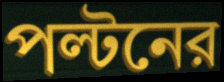
পল্টনের